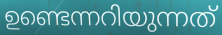
ഉണ്ടെന്നറിയുന്നത്